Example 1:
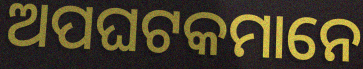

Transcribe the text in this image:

ଅପଘଟକମାନେ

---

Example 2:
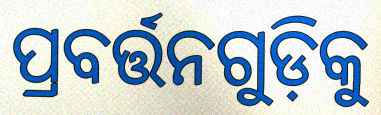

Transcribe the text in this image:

ପ୍ରବର୍ତ୍ତନଗୁଡ଼ିକୁ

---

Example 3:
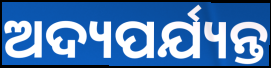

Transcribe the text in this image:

ଅଦ୍ୟପର୍ଯ୍ୟନ୍ତ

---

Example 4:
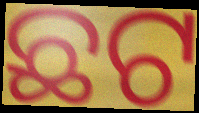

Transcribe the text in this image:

ଛଟ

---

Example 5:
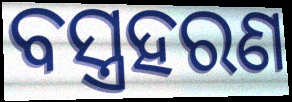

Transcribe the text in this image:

ବସ୍ତ୍ରହରଣ